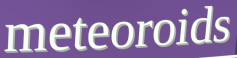
meteoroids